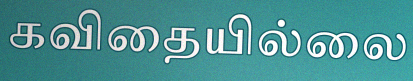
கவிதையில்லை